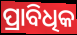
ପ୍ରାବିଧିକ